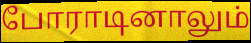
போராடினாலும்